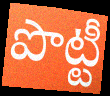
పొట్టీ